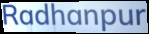
Radhanpur